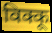
विक्कू